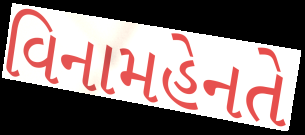
વિનામહેનતે